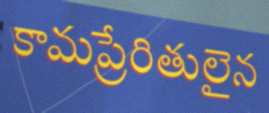
కామప్రేరితులైన